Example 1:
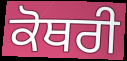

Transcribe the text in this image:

ਕੋਥਰੀ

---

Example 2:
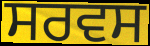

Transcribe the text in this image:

ਸਰਵਸ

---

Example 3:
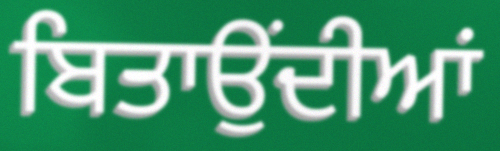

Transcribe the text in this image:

ਬਿਤਾਉਂਦੀਆਂ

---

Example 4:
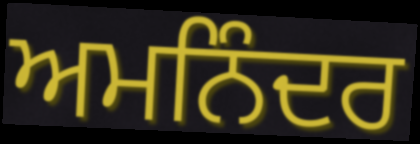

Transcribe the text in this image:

ਅਮਨਿੰਦਰ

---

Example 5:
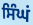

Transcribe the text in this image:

ਸਿੰਘਂ